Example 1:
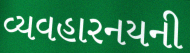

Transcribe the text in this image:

વ્યવહારનયની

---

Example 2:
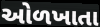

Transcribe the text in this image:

ઓળખાતા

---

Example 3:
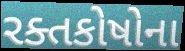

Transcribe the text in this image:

રક્તકોષોના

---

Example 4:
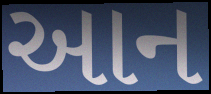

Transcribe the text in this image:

આન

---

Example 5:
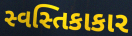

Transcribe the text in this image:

સ્વસ્તિકાકાર